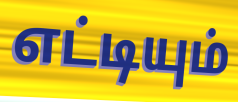
எட்டியும்